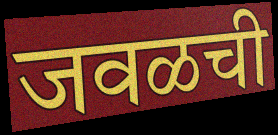
जवळची